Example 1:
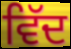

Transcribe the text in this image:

ਵਿੱਦ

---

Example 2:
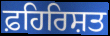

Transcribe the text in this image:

ਫ਼ਹਿਰਿਸ਼ਤ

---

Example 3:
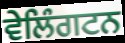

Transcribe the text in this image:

ਵੇਲਿੰਗਟਨ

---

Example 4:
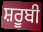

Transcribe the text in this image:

ਸ਼ਰੂਬੀ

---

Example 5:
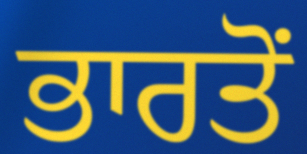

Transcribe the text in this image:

ਭਾਰਤੋਂ